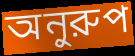
অনুৰুপ